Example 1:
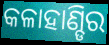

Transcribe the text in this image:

କଳାହାଣ୍ଡିର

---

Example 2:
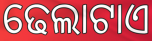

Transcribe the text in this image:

ଢେଲାଟାଏ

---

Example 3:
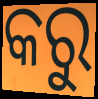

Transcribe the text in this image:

କରୁ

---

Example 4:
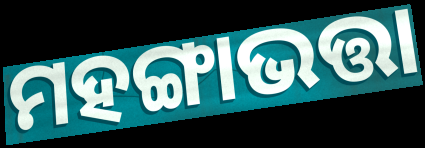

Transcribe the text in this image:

ମହଙ୍ଗାଭତ୍ତା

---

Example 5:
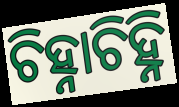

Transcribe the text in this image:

ଚିହ୍ନାଚିହ୍ନି